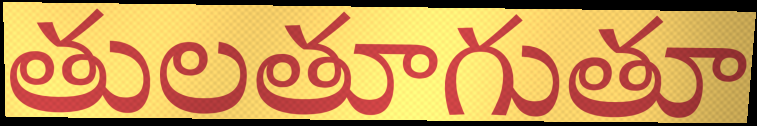
తులతూగుతూ